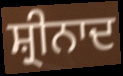
ਸ਼੍ਰੀਨਾਦ